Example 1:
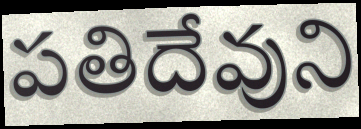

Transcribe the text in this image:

పతిదేవుని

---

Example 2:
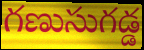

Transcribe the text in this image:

గణుసుగడ్డ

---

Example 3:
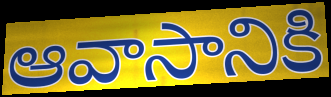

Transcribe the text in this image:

ఆవాసానికి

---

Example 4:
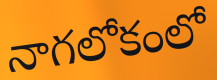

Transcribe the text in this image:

నాగలోకంలో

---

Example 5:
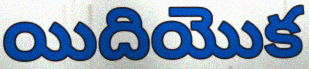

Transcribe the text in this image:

యిదియొక